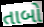
તાબો